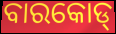
ବାରକୋଡ୍